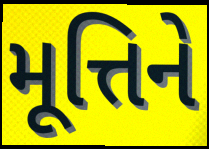
મૂત્તિને